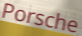
Porsche